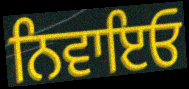
ਨਿਵਾਇਓ